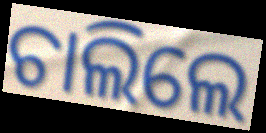
ଚାଲିଲେ